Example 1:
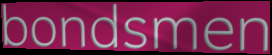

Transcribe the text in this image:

bondsmen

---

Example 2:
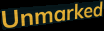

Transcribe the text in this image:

Unmarked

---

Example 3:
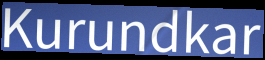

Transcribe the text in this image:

Kurundkar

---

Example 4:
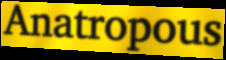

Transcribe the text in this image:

Anatropous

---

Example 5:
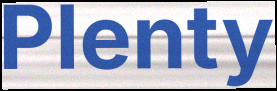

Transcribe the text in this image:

Plenty